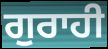
ਗੁਰਾਹੀ